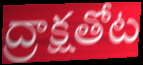
ద్రాక్షతోట